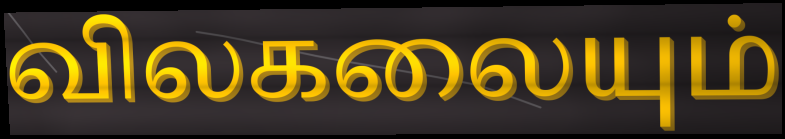
விலகலையும்